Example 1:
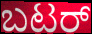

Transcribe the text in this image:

ಬಟರ್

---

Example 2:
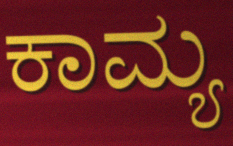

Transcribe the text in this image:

ಕಾಮ್ಯ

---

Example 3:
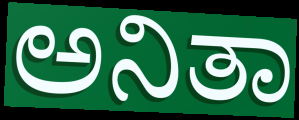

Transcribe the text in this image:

ಅನಿತಾ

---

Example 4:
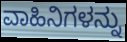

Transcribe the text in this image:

ವಾಹಿನಿಗಳನ್ನು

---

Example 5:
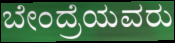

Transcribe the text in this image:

ಬೇಂದ್ರೆಯವರು